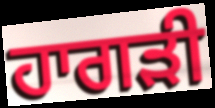
ਹਾਗੜੀ